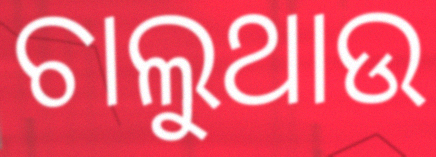
ଚାଲୁଥାଉ